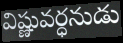
విష్ణువర్ధనుడు